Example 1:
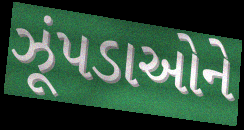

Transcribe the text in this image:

ઝૂંપડાઓને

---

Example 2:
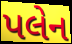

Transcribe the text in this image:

પલેન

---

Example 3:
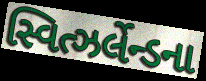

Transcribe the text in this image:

સ્વિત્ઝર્લેન્ડના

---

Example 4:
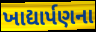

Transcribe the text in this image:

ખાદ્યાર્પણના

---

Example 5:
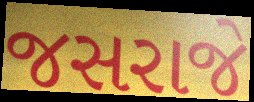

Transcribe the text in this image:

જસરાજે